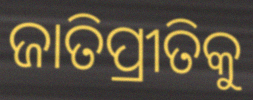
ଜାତିପ୍ରୀତିକୁ